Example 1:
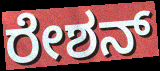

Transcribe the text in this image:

ರೇಶನ್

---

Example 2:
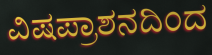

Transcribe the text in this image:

ವಿಷಪ್ರಾಶನದಿಂದ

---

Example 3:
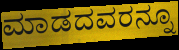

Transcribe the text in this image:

ಮಾಡದವರನ್ನೂ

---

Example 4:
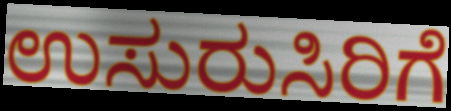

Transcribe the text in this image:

ಉಸುರುಸಿರಿಗೆ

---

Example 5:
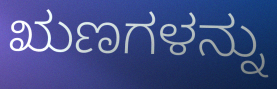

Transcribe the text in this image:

ಋಣಗಳನ್ನು